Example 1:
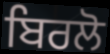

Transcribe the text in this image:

ਬਿਰਲੋ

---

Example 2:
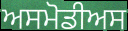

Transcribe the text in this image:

ਅਸਮੋਡੀਅਸ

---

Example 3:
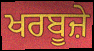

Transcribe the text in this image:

ਖਰਬੂਜ਼ੇ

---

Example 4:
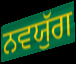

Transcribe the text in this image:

ਨਵਯੁੱਗ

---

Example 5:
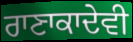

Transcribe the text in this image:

ਰਾਣਾਕਾਦੇਵੀ